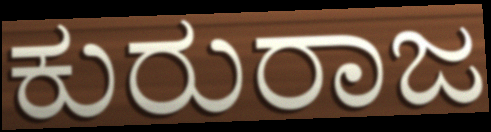
ಕುರುರಾಜ